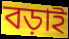
বড়াই